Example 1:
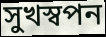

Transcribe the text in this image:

সুখস্বপন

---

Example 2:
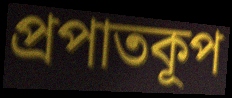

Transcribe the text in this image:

প্রপাতকূপ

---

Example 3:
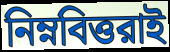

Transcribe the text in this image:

নিম্নবিত্তরাই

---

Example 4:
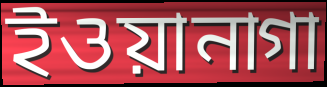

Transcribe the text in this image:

ইওয়ানাগা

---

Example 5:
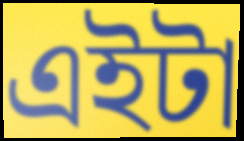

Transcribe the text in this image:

এইটা